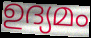
ഉദ്യമം